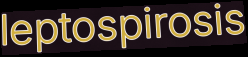
leptospirosis